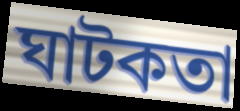
ঘাটকতা